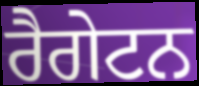
ਰੈਗੇਟਨ